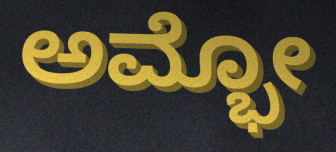
ಅಮ್ಭೋ